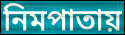
নিমপাতায়